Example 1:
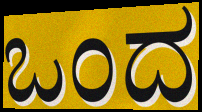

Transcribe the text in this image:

ಒಂದ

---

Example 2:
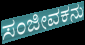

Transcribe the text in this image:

ಸಂಜೀವಕನು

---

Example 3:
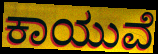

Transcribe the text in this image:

ಕಾಯುವೆ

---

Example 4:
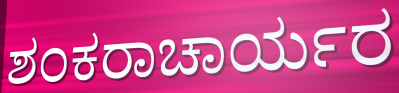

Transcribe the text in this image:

ಶಂಕರಾಚಾರ್ಯರ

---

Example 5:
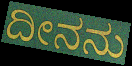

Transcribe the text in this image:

ದೀನನು